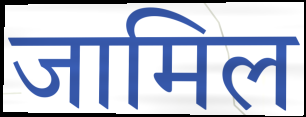
जामिल